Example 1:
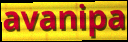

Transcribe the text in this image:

avanipa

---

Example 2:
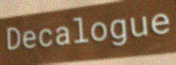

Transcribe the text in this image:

Decalogue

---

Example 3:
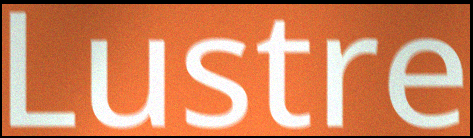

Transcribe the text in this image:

Lustre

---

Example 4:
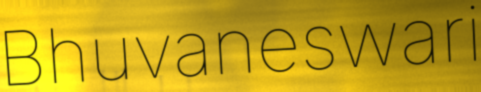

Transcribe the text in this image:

Bhuvaneswari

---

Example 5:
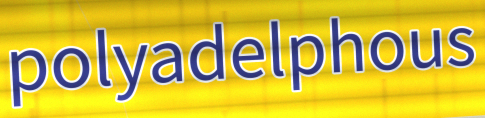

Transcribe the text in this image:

polyadelphous